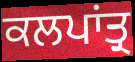
ਕਲਪਾਂਤ੍ਰ